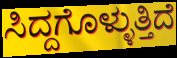
ಸಿದ್ದಗೊಳ್ಳುತ್ತಿದೆ